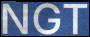
NGT